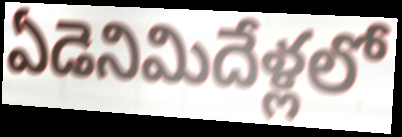
ఏడెనిమిదేళ్లలో